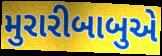
મુરારીબાબુએ